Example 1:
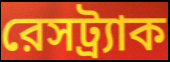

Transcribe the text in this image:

রেসট্র্যাক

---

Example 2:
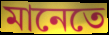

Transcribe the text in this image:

মানেতে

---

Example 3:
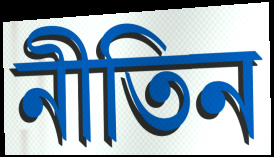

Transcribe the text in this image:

নীতিন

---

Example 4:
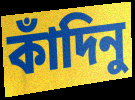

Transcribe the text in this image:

কাঁদিনু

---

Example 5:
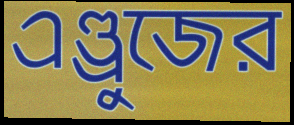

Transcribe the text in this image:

এণ্ড্রুজের